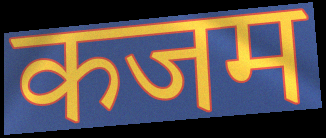
कजम